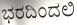
ಭರದಿಂದಲಿ